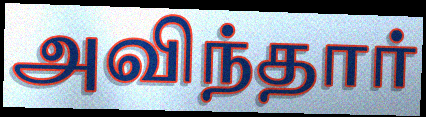
அவிந்தார்